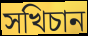
সখিচান